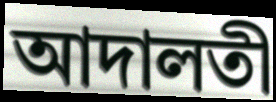
আদালতী